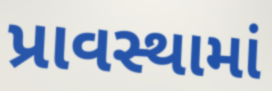
પ્રાવસ્થામાં